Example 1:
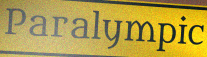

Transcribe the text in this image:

Paralympic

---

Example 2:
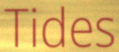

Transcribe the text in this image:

Tides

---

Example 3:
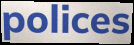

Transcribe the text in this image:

polices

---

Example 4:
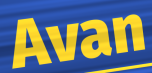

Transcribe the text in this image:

Avan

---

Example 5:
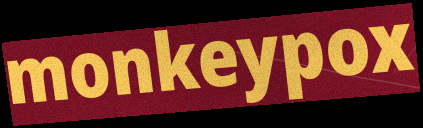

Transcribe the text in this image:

monkeypox